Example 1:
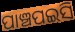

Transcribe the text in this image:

ପାଞ୍ଚପଇସି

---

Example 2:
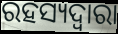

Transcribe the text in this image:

ରହସ୍ୟଦ୍ଵାରା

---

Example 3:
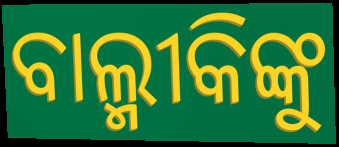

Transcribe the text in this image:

ବାଲ୍ମୀକିଙ୍କୁ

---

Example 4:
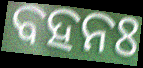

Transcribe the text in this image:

ବହନଃ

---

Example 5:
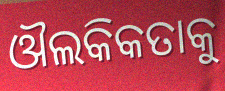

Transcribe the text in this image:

ଔଲକିକତାକୁ